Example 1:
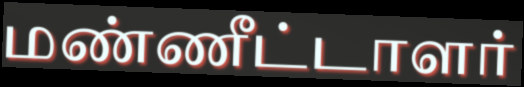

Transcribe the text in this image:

மண்ணீட்டாளர்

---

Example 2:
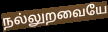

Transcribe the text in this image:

நல்லுறவையே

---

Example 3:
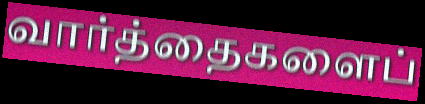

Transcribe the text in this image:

வார்த்தைகளைப்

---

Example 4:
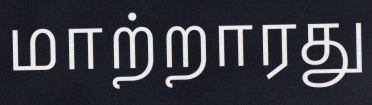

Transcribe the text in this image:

மாற்றாரது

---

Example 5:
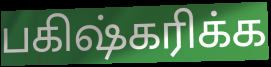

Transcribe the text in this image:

பகிஷ்கரிக்க